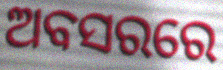
ଅବସରରେ